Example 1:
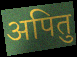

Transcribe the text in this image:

अपितु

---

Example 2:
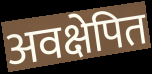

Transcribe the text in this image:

अवक्षेपित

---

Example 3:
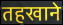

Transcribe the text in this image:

तहखाने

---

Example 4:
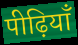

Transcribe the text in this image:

पीढ़ियाँ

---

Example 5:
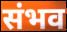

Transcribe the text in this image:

संभव